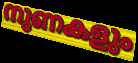
നുണകളും